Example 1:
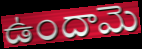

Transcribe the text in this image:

ఉందామె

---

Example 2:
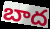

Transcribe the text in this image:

బాద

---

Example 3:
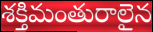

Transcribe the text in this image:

శక్తిమంతురాలైన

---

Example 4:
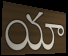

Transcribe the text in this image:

యా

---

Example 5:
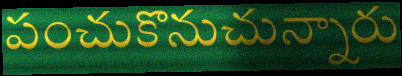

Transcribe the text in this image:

పంచుకొనుచున్నారు